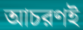
আচরণই